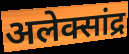
अलेक्सांद्र